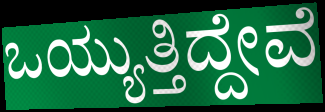
ಒಯ್ಯುತ್ತಿದ್ದೇವೆ